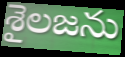
శైలజను